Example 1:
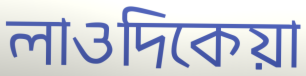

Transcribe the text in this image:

লাওদিকেয়া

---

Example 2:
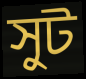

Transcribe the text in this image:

সুট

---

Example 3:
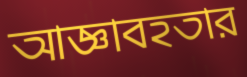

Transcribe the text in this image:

আজ্ঞাবহতার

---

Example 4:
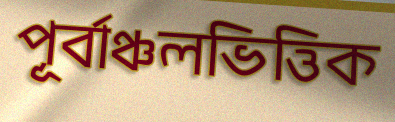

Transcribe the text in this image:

পূর্বাঞ্চলভিত্তিক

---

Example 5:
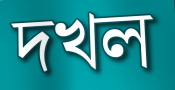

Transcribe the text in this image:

দখল